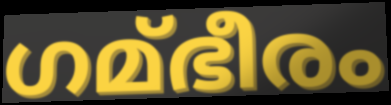
ഗമ്ഭീരം